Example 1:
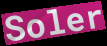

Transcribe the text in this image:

Soler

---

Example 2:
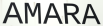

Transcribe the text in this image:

AMARA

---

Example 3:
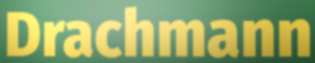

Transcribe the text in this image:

Drachmann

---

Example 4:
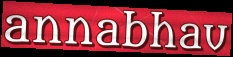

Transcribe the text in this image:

annabhau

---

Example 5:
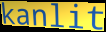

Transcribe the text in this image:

kanlit